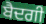
ਬੈਦਗੀ